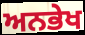
ਅਨਭੇਖ